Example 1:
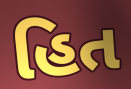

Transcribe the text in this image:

હિત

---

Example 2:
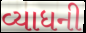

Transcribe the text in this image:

વ્યાધની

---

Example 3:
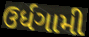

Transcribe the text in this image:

ઉર્ધગામી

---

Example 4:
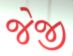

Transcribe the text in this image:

જેજી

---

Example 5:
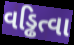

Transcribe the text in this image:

વડ્ઢિત્વા